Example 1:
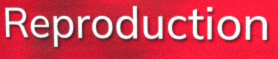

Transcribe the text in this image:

Reproduction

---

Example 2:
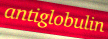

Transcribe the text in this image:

antiglobulin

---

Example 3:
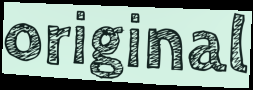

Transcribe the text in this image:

original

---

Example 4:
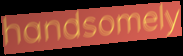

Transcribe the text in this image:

handsomely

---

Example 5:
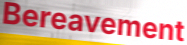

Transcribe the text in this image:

Bereavement